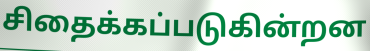
சிதைக்கப்படுகின்றன